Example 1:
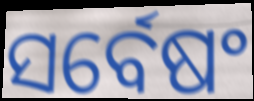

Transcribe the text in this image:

ସର୍ବେଷଂ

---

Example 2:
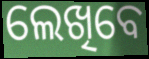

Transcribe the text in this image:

ଲେଖିବେ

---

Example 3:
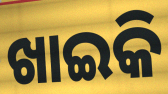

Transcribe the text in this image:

ଖାଇକି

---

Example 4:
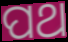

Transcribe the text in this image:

ପଥ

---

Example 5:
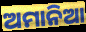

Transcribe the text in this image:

ଅମାନିଆ